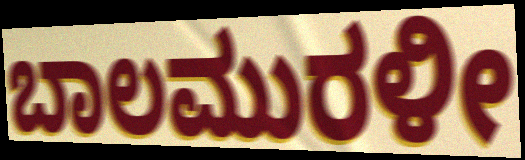
ಬಾಲಮುರಳೀ